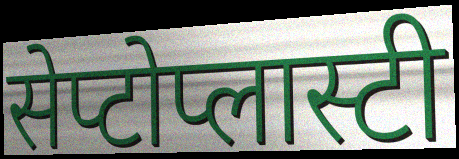
सेप्टोप्लास्टी